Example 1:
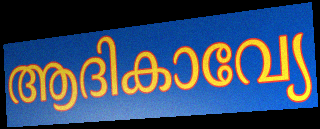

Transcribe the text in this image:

ആദികാവ്യേ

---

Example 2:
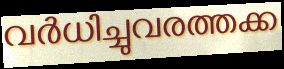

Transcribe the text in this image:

വർധിച്ചുവരത്തക്ക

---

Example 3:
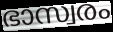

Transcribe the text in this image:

ഭാസ്വരം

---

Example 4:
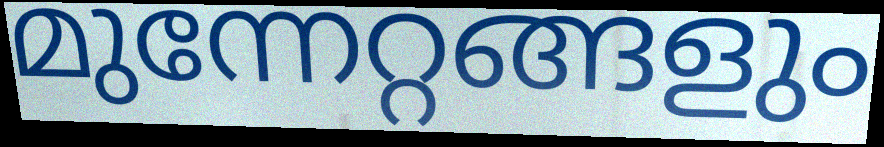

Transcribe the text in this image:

മുന്നേറ്റങ്ങളും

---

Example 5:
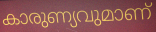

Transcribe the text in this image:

കാരുണ്യവുമാണ്